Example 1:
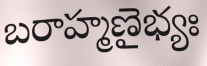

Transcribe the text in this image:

బరాహ్మణైభ్యః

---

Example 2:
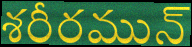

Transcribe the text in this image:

శరీరమున్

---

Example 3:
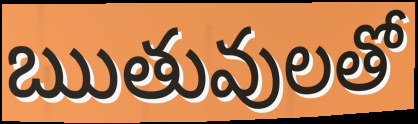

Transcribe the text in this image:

ఋతువులతో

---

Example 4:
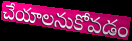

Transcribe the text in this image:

చేయాలనుకోవడం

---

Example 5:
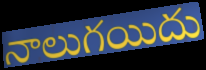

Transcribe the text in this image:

నాలుగయిదు